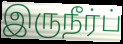
இருநீர்ப்